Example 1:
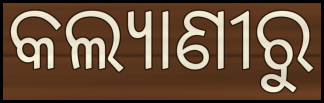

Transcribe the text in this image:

କଲ୍ୟାଣୀରୁ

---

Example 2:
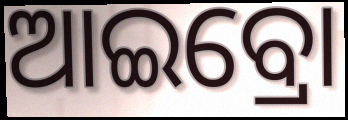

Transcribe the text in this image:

ଆଇବ୍ରୋ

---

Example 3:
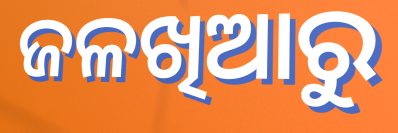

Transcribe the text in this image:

ଜଳଖିଆରୁ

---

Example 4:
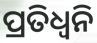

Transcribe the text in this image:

ପ୍ରତିଧ୍ବନି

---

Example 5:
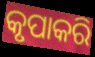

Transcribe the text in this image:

କୃପାକରି